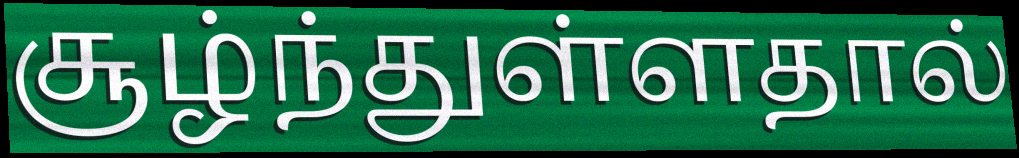
சூழ்ந்துள்ளதால்